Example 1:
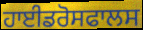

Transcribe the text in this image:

ਹਾਈਡਰੋਸਫਾਲਸ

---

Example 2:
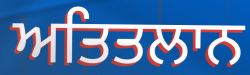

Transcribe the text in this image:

ਅਤਿਤਲਾਨ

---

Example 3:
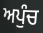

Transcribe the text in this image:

ਅਪੁੰਚ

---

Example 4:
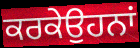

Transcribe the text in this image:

ਕਰਕੇਉਹਨਾਂ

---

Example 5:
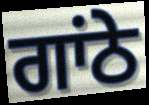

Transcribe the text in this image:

ਗਾਂਠੇ